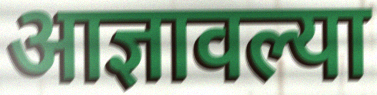
आज्ञावल्या